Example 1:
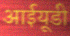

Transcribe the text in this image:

आईयूडी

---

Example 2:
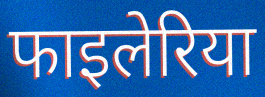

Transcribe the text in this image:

फाइलेरिया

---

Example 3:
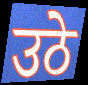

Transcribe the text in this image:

उठे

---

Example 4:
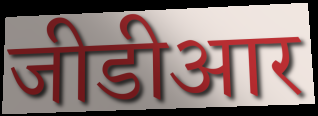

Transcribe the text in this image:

जीडीआर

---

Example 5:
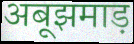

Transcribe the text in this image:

अबूझमाड़